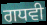
ਗਧਵੀ